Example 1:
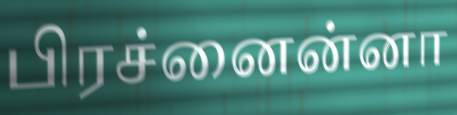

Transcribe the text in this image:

பிரச்னைன்னா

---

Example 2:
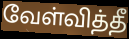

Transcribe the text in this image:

வேள்வித்தீ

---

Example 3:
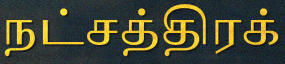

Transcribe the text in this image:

நட்சத்திரக்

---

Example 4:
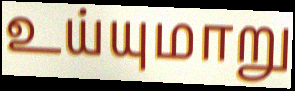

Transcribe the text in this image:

உய்யுமாறு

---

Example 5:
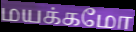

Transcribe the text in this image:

மயக்கமோ